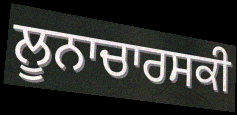
ਲੂਨਾਚਾਰਸਕੀ